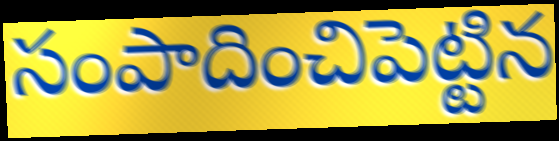
సంపాదించిపెట్టిన